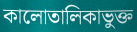
কালোতালিকাভুক্ত